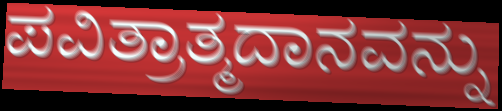
ಪವಿತ್ರಾತ್ಮದಾನವನ್ನು